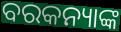
ବରକନ୍ୟାଙ୍କ